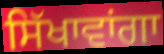
ਸਿੱਖਾਵਾਂਗਾ